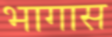
भागास